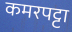
कमरपट्टा